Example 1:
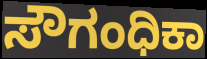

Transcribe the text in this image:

ಸೌಗಂಧಿಕಾ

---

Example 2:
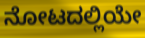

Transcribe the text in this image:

ನೋಟದಲ್ಲಿಯೇ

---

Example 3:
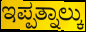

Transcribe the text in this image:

ಇಪ್ಪತ್ನಾಲ್ಕು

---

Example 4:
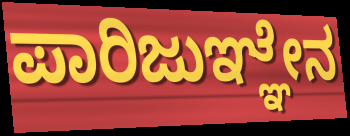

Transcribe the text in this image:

ಪಾರಿಜುಞ್ಞೇನ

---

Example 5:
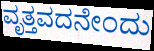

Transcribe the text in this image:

ವೃತ್ತವದನೇಂದು